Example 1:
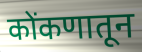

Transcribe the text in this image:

कोंकणातून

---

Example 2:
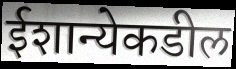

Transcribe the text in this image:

ईशान्येकडील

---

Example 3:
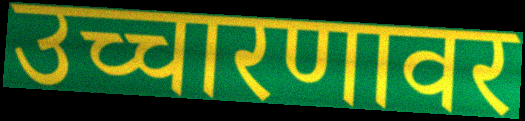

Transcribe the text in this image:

उच्चारणावर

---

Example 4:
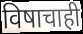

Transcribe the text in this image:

विषाचाही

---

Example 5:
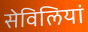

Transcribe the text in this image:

सेविलियां